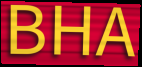
BHA